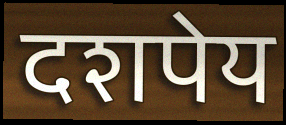
दशपेय